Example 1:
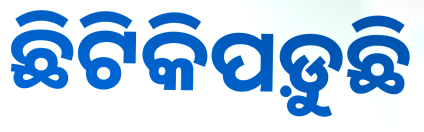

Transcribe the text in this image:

ଛିଟିକିପଡ଼ୁଛି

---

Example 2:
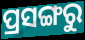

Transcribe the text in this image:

ପ୍ରସଙ୍ଗରୁ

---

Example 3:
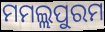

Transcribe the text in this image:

ମମଲ୍ଲପୁରମ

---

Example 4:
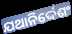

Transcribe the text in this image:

ଯଥାନିର୍ଦ୍ଦେଶଂ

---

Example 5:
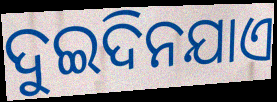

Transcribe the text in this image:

ଦୁଇଦିନଯାଏ